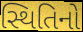
સ્થિતિનો